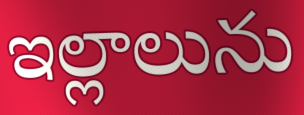
ఇల్లాలును